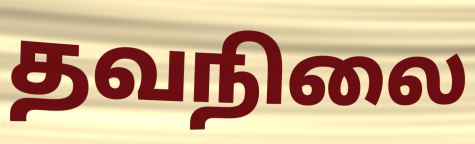
தவநிலை